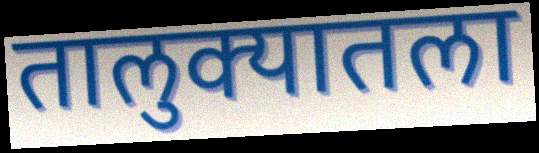
तालुक्यातला